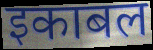
इकाबल